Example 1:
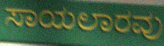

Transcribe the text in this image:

ಸಾಯಲಾರವು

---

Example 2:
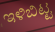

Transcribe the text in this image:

ಇಳಿಬಿಟ್ಟ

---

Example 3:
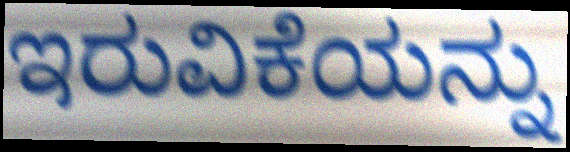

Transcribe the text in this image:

ಇರುವಿಕೆಯನ್ನು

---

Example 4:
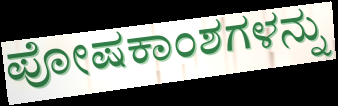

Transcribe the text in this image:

ಪೋಷಕಾಂಶಗಳನ್ನು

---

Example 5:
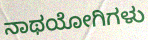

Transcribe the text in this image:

ನಾಥಯೋಗಿಗಳು